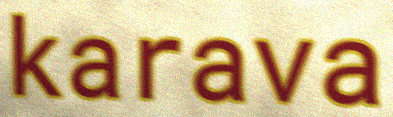
karava